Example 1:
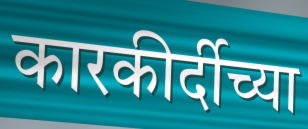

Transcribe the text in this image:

कारकीर्दीच्या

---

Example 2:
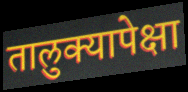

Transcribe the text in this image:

तालुक्यापेक्षा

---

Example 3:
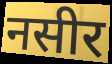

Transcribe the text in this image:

नसीर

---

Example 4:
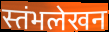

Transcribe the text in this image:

स्तंभलेखन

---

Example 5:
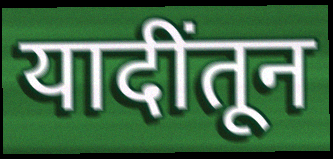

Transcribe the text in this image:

यादींतून